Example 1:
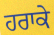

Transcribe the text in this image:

ਹਰਾਕੇ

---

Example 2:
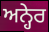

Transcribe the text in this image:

ਅਨ੍ਹੇਰ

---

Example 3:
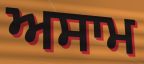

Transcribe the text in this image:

ਅਸਾਮ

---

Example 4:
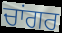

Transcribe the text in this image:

ਚਾਂਗਰ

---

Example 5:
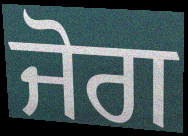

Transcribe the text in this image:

ਜੋਗ